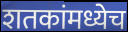
शतकांमध्येच